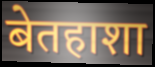
बेतहाशा